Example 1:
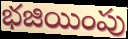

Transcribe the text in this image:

భజియింపు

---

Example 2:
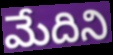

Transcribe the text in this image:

మేదిని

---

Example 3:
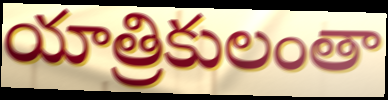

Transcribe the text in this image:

యాత్రికులంతా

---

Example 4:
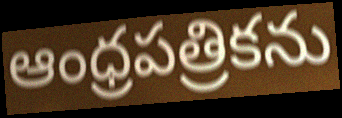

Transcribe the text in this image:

ఆంధ్రపత్రికను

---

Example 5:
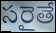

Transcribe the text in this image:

సరైతే